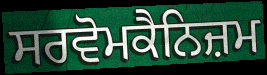
ਸਰਵੋਮਕੈਨਿਜ਼ਮ